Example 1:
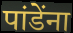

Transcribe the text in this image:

पांडेंना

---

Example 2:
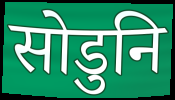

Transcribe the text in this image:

सोडुनि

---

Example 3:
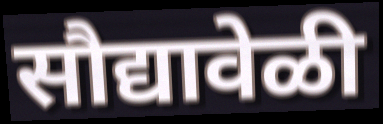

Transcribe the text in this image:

सौद्यावेळी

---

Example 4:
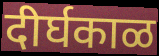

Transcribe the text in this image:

दीर्घकाळ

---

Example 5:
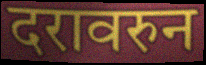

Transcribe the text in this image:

दरावरुन